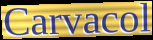
Carvacol